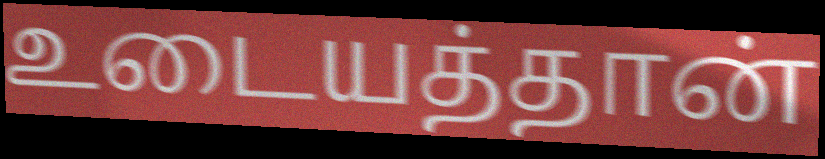
உடையத்தான்